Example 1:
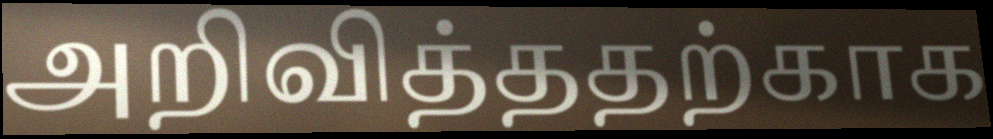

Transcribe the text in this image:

அறிவித்ததற்காக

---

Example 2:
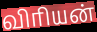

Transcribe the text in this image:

விரியன்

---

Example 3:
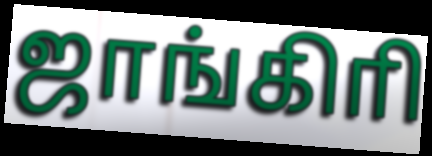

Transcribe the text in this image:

ஜாங்கிரி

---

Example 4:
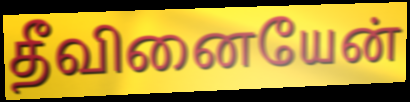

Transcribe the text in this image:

தீவினையேன்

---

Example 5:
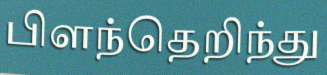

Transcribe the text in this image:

பிளந்தெறிந்து